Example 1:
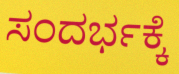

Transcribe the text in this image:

ಸಂದರ್ಭಕ್ಕೆ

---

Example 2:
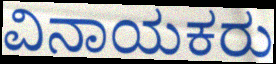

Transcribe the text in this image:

ವಿನಾಯಕರು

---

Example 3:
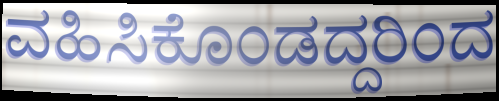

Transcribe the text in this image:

ವಹಿಸಿಕೊಂಡದ್ದರಿಂದ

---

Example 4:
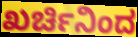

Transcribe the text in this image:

ಖರ್ಚಿನಿಂದ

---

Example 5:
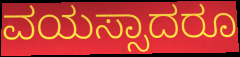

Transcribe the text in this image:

ವಯಸ್ಸಾದರೂ